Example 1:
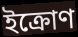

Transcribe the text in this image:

ইক্রোণ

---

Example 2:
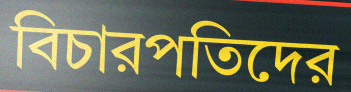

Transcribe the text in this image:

বিচারপতিদের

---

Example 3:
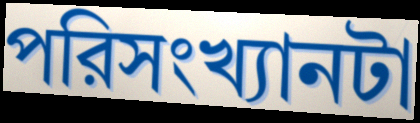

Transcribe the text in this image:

পরিসংখ্যানটা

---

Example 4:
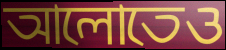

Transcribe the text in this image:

আলোতেও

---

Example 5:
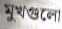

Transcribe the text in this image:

মুখগুলো